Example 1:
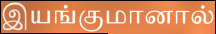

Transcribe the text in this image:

இயங்குமானால்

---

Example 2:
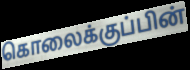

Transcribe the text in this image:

கொலைக்குப்பின்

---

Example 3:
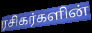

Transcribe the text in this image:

ரசிகர்களின்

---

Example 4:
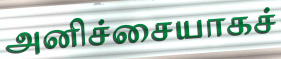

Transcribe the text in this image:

அனிச்சையாகச்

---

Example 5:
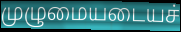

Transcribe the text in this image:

முழுமையடையச்